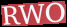
RWO